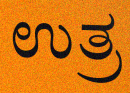
ಉತ್ರ